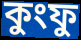
কুংফু